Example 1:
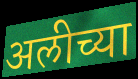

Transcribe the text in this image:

अलीच्या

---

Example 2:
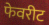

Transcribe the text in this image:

फेवरीट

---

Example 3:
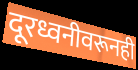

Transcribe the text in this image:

दूरध्वनीवरूनही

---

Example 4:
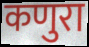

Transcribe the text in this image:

कणुरा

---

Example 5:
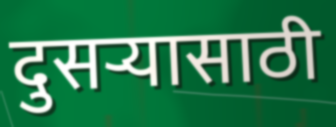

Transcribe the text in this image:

दुसऱ्यासाठी